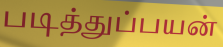
படித்துப்பயன்